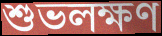
শুভলক্ষণ